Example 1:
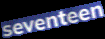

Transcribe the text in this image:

seventeen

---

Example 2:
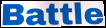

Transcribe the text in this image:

Battle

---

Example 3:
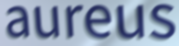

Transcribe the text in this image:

aureus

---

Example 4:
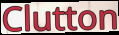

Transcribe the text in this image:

Clutton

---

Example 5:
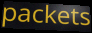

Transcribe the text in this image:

packets